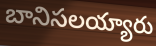
బానిసలయ్యారు